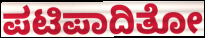
ಪಟಿಪಾದಿತೋ